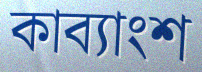
কাব্যাংশ